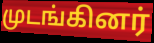
முடங்கினர்